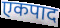
एकपाद